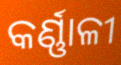
କର୍ଣ୍ଣାଳୀ